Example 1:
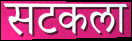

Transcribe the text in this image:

सटकला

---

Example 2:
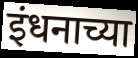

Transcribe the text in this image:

इंधनाच्या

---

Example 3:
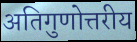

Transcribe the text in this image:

अतिगुणोत्तरीय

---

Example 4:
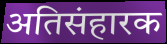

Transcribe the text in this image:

अतिसंहारक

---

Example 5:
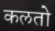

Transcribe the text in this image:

कलतो